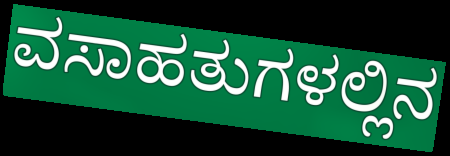
ವಸಾಹತುಗಳಲ್ಲಿನ